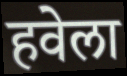
हवेला